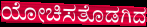
ಯೋಚಿಸತೊಡಗಿದ